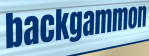
backgammon